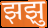
झझु